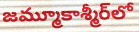
జమ్మూకాశ్మీర్‌లో